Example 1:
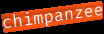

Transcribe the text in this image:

chimpanzee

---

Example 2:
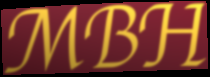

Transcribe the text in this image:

MBH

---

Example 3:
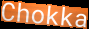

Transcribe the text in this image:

Chokka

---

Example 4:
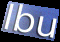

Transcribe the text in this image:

Ibu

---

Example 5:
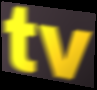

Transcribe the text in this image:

tv